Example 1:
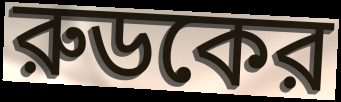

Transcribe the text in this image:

রুডকের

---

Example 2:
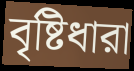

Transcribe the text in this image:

বৃষ্টিধারা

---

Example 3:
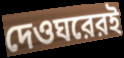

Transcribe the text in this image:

দেওঘরেরই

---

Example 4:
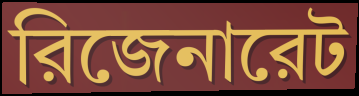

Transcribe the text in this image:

রিজেনারেট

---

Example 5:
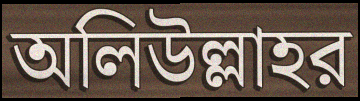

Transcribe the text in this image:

অলিউল্লাহর